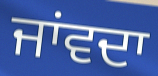
ਜਾਂਵਦਾ